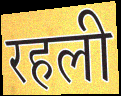
रहली